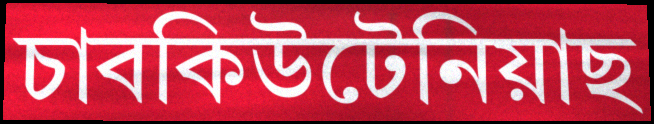
চাবকিউটেনিয়াছ